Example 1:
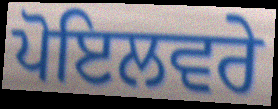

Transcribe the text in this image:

ਪੋਇਲਵਰੇ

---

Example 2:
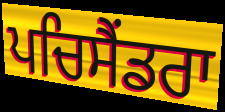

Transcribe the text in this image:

ਪਚਿਸੈਂਡਰਾ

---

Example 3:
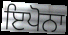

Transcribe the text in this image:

ਇਪੋਨਾ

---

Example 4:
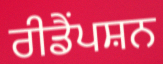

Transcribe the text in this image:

ਰੀਡੈਂਪਸ਼ਨ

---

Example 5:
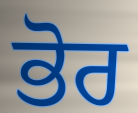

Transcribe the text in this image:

ਭੋਰ